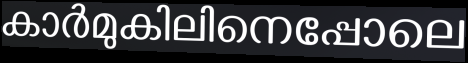
കാർമുകിലിനെപ്പോലെ